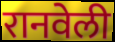
रानवेली